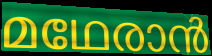
മഥേരാൻ